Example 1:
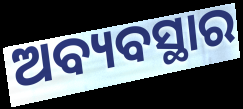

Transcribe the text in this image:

ଅବ୍ୟବସ୍ଥାର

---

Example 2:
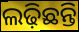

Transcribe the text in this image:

ଲଢ଼ିଛନ୍ତି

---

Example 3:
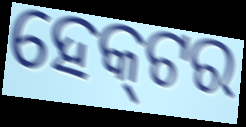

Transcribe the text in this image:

ହେକ୍‌ଟର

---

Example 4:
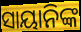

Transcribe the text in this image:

ସାୟାନିଙ୍କ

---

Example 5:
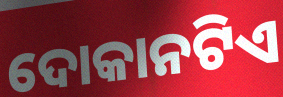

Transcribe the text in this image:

ଦୋକାନଟିଏ